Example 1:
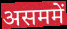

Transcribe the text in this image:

असममें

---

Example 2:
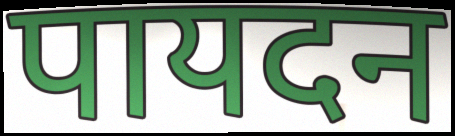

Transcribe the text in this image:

पायदन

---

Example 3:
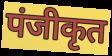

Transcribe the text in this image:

पंजीकृत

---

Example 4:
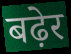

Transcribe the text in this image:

बढ़ेर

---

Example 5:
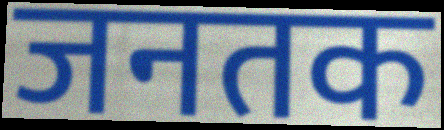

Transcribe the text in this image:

जनतक